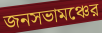
জনসভামঞ্চের